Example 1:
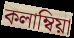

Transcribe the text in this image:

কলাম্বিয়া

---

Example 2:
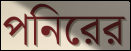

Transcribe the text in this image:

পনিরের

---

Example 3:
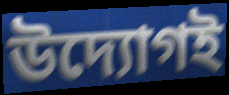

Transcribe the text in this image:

উদ্যোগই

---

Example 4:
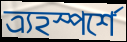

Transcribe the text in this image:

ত্র্যহস্পর্শে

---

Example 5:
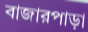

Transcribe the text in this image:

বাজারপাড়া